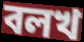
বলখ